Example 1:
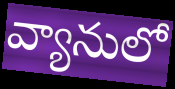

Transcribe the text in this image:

వ్యానులో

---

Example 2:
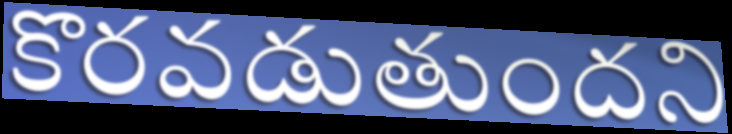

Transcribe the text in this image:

కొరవడుతుందని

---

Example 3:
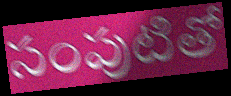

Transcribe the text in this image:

సంపుటితో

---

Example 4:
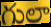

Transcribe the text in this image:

గులా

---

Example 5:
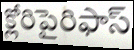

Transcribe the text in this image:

క్లోరిపైరిఫాస్